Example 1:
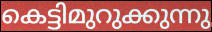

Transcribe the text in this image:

കെട്ടിമുറുക്കുന്നു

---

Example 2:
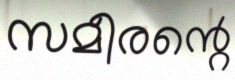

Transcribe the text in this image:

സമീരന്റെ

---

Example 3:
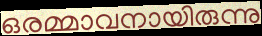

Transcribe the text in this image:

ഒരമ്മാവനായിരുന്നു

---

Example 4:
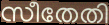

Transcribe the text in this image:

സീതേതി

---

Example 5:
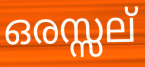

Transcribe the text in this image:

ഒരസ്സല്